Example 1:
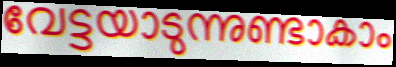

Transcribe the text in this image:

വേട്ടയാടുന്നുണ്ടാകാം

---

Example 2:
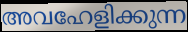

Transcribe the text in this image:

അവഹേളിക്കുന്ന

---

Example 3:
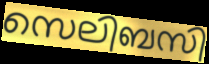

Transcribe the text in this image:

സെലിബസി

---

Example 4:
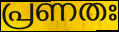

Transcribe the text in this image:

പ്രണതഃ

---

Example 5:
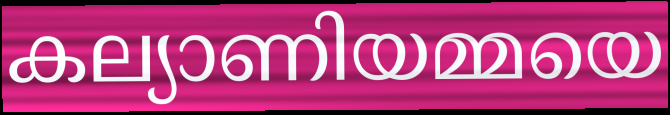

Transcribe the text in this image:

കല്യാണിയമ്മയെ